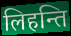
लिहन्ति